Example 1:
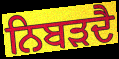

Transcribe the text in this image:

ਨਿਬੜਦੈ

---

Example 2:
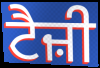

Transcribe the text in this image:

ਟੈਜ਼ੀ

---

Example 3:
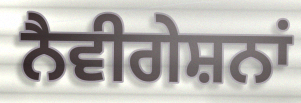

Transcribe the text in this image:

ਨੈਵੀਗੇਸ਼ਨਾਂ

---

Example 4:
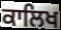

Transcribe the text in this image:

ਕਾਲਿਖ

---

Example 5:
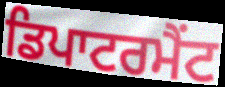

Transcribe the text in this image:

ਡਿਪਾਟਰਮੈਂਟ